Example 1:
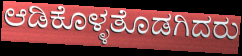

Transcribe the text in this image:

ಆಡಿಕೊಳ್ಳತೊಡಗಿದರು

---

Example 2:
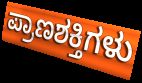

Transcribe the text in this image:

ಪ್ರಾಣಶಕ್ತಿಗಳು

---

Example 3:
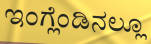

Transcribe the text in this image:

ಇಂಗ್ಲೆಂಡಿನಲ್ಲೂ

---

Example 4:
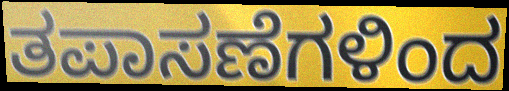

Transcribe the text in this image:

ತಪಾಸಣೆಗಳಿಂದ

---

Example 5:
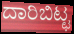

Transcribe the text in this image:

ದಾರಿಬಿಟ್ಟ